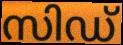
സിഡ്